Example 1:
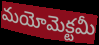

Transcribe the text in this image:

మయోమెక్టమీ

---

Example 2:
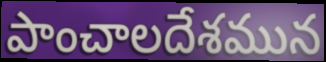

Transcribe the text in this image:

పాంచాలదేశమున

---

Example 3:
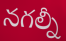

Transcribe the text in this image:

నగల్నీ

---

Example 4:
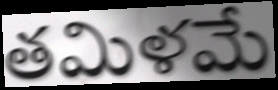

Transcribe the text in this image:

తమిళమే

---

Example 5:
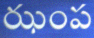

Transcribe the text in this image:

ఝంప